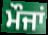
ਮੌਜਾਂ